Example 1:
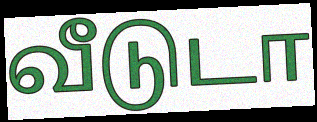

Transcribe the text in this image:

வீடுடா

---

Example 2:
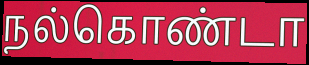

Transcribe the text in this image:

நல்கொண்டா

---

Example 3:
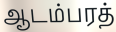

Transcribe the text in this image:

ஆடம்பரத்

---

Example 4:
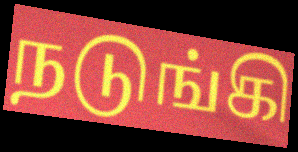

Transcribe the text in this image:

நடுங்கி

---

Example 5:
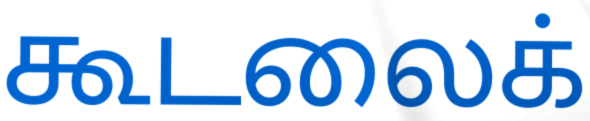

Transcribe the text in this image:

கூடலைக்